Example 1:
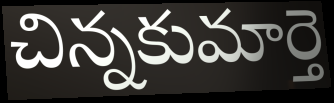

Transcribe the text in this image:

చిన్నకుమార్తె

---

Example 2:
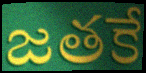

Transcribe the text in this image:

జతకే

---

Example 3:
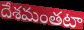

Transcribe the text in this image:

దేశమంతటా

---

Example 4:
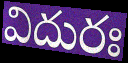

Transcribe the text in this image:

విదురః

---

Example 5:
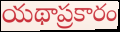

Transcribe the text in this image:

యథాప్రకారం